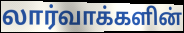
லார்வாக்களின்